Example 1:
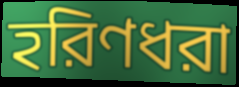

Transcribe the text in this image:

হরিণধরা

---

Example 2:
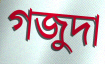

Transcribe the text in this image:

গজুদা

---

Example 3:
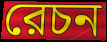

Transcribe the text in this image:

রেচন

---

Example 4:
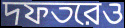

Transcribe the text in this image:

দফতরেও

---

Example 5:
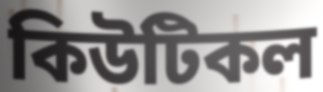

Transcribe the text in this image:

কিউটিকল